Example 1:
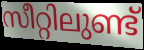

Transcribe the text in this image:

സീറ്റിലുണ്ട്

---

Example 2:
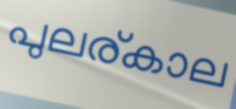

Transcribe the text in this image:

പുലര്കാല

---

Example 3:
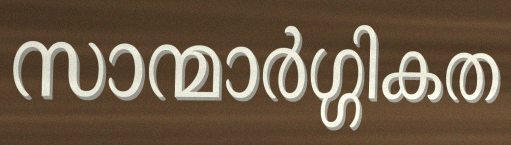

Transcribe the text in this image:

സാന്മാർഗ്ഗികത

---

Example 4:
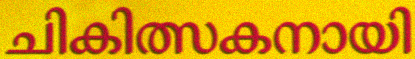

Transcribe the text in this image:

ചികിത്സകനായി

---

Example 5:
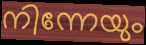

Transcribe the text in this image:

നിന്നേയും